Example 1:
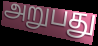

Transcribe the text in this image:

அறுபது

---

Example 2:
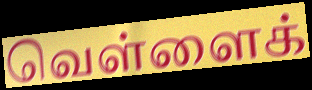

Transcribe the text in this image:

வெள்ளைக்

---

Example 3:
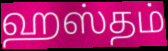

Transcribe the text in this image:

ஹஸ்தம்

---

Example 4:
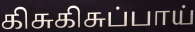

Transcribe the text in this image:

கிசுகிசுப்பாய்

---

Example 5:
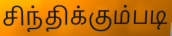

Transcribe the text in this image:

சிந்திக்கும்படி